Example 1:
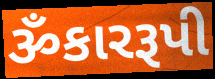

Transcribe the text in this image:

ૐકારરૂપી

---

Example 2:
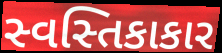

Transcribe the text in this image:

સ્વસ્તિકાકાર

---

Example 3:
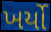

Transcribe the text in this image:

ખર્યો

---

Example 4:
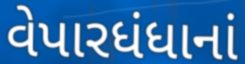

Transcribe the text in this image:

વેપારધંધાનાં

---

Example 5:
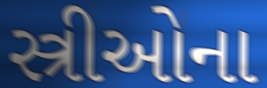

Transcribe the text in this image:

સ્ત્રીઓના